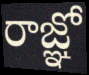
రాజ్ఞో